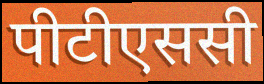
पीटीएससी